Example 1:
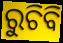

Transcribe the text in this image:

ରୁଚିବି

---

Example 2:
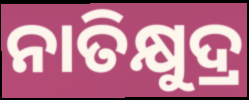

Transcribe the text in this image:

ନାତିକ୍ଷୁଦ୍ର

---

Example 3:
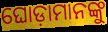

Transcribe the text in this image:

ଘୋଡ଼ାମାନଙ୍କୁ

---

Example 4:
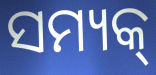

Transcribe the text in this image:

ସମ୍ୟକ୍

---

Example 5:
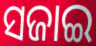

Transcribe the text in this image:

ସଜାଇ